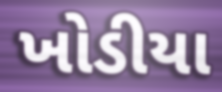
ખોડીયા